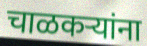
चाळकऱ्यांना